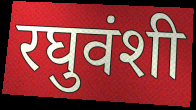
रघुवंशी